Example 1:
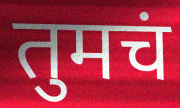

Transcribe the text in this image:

तुमचं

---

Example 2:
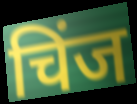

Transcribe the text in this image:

चिंज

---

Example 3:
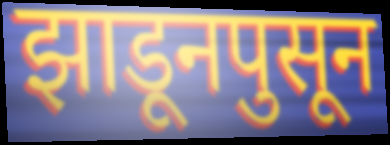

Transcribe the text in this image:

झाडूनपुसून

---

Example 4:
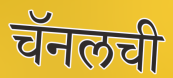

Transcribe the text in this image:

चॅनलची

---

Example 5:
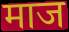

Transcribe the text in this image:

माज